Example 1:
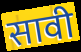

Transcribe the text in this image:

सावी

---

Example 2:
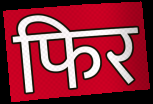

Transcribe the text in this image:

फिर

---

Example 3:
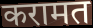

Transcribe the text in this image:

करामत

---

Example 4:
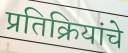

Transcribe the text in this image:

प्रतिक्रियांचे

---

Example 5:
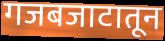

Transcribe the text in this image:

गजबजाटातून